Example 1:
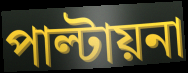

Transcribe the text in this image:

পাল্টায়না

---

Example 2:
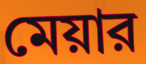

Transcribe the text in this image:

মেয়ার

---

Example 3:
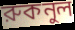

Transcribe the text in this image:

রুকনুল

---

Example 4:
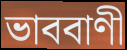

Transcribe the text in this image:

ভাববাণী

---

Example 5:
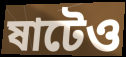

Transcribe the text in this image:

ষাটেও